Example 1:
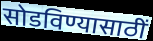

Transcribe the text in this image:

सोडविण्यासाठीं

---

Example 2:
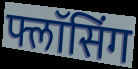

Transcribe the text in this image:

फ्लॉसिंग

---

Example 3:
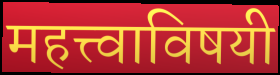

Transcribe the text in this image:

महत्त्वाविषयी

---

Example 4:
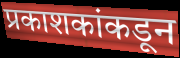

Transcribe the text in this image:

प्रकाशकांकडून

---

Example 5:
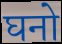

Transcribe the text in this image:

घनो